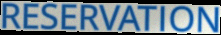
RESERVATION